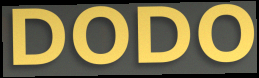
DODO